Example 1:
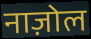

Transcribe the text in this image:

नाज़ोल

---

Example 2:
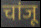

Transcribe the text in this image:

चांजू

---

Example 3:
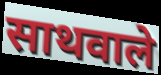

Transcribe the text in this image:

साथवाले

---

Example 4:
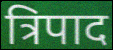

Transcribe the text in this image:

त्रिपाद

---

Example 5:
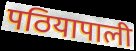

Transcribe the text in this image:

पठियापाली